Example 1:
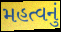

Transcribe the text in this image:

મહત્વનું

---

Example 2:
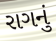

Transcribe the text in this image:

રાગનું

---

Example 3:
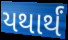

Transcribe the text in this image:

યથાર્થં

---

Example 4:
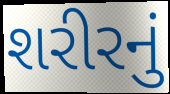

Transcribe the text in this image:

શરીરનું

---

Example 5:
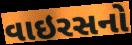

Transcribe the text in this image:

વાઇરસનો